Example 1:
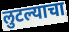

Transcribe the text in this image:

लुटल्याचा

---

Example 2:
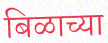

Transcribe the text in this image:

बिळाच्या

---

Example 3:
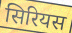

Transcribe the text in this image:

सिरियस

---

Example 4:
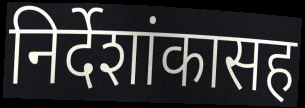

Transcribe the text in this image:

निर्देशांकासह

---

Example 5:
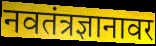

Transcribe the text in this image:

नवतंत्रज्ञानावर